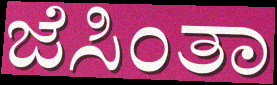
ಜೆಸಿಂತಾ